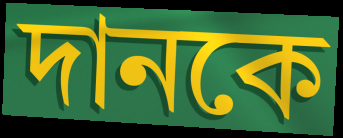
দানকে